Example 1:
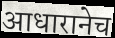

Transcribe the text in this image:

आधारानेच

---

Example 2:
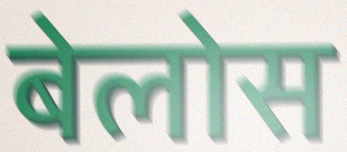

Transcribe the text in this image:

बेलोस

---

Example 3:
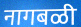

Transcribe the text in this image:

नागबळी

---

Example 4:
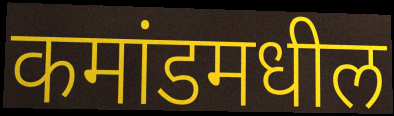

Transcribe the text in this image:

कमांडमधील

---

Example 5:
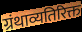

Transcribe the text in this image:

ग्रंथाव्यतिरिक्त